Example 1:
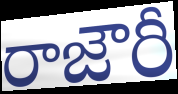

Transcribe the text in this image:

రాజౌరీ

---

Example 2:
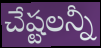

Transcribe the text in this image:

చేష్టలన్నీ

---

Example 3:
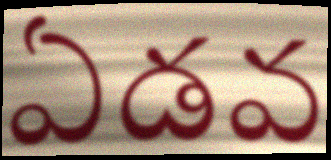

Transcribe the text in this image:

ఏడవ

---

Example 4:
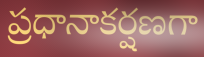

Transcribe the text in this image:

ప్రధానాకర్షణగా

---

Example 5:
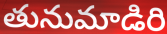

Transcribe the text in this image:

తునుమాడిరి